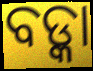
ବଡ୍କା